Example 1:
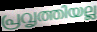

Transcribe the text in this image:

പ്രവൃത്തിയല്ല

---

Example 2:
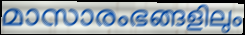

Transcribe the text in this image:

മാസാരംഭങ്ങളിലും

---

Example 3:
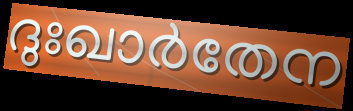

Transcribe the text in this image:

ദുഃഖാർതേന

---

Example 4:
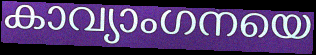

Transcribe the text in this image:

കാവ്യാംഗനയെ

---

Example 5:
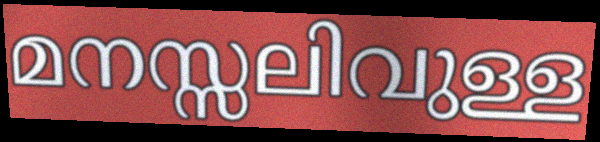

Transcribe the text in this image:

മനസ്സലിവുള്ള